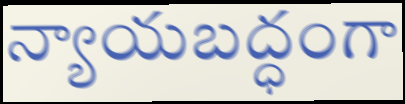
న్యాయబద్ధంగా